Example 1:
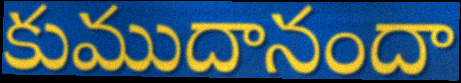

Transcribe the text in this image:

కుముదానందా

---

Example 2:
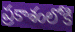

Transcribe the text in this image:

ప్రకాశంలోకి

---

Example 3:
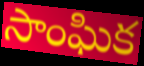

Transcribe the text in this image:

సాంఘిక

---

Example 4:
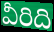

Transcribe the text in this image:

వీరిది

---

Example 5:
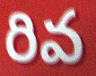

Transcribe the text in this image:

రివ